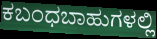
ಕಬಂಧಬಾಹುಗಳಲ್ಲಿ